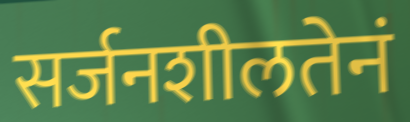
सर्जनशीलतेनं